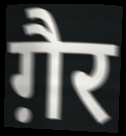
ग़ैर